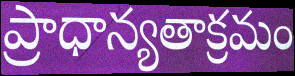
ప్రాధాన్యతాక్రమం